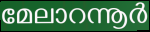
മേലാറന്നൂർ